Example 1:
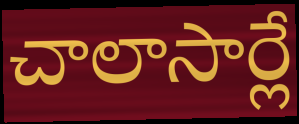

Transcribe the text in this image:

చాలాసార్లే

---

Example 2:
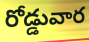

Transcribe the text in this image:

రోడ్డువార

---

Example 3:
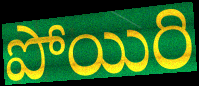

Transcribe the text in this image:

పోయిరి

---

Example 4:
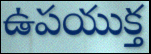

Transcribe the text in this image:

ఉపయుక్త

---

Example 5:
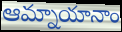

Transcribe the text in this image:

ఆమ్నాయానాం